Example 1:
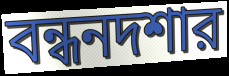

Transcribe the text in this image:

বন্ধনদশার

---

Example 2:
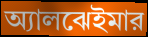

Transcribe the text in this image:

অ্যালঝেইমার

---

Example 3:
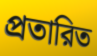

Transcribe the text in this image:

প্রতারিত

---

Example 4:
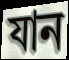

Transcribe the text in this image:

যান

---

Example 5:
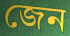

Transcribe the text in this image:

জেন